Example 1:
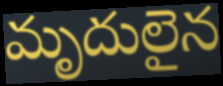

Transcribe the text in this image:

మృదులైన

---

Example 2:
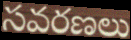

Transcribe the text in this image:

సవరణలు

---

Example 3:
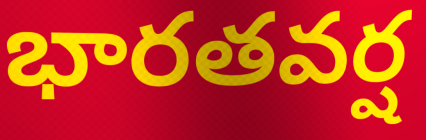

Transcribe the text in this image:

భారతవర్ష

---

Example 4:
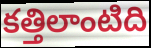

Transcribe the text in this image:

కత్తిలాంటిది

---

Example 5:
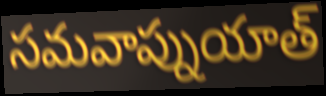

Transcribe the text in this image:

సమవాప్నుయాత్